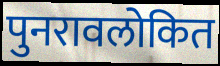
पुनरावलोकित